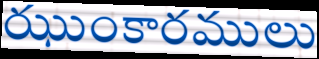
ఝుంకారములు